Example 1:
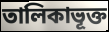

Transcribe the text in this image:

তালিকাভূক্ত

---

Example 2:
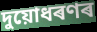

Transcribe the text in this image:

দুয়োধৰণৰ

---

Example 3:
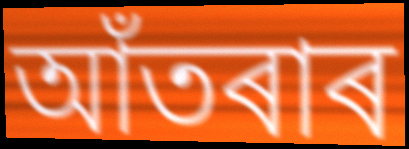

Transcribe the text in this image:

আঁতৰাৰ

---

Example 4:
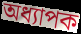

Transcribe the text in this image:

অধ্যাপক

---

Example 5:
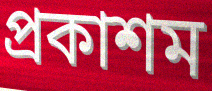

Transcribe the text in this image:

প্ৰকাশম